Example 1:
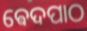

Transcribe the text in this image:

ଵେଦପାଠ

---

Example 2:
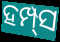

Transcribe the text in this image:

ହମ୍ପ୍‌ସ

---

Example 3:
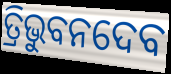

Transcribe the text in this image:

ତ୍ରିଭୁବନଦେବ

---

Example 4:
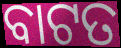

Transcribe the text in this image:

ବାଟତ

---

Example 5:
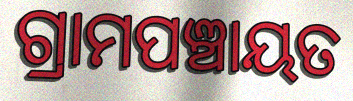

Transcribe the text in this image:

ଗ୍ରାମପଞ୍ଚାୟତ